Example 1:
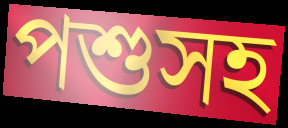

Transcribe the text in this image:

পশুসহ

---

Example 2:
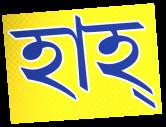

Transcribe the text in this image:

হাহ্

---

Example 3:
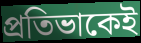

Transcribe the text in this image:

প্রতিভাকেই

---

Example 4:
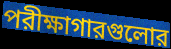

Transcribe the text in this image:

পরীক্ষাগারগুলোর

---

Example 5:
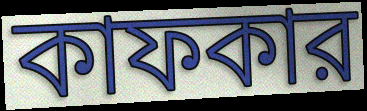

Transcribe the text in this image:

কাফকার